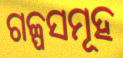
ଗଳ୍ପସମୂହ